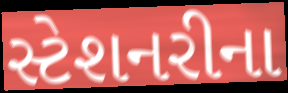
સ્ટેશનરીના